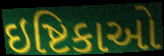
ઇષ્ટિકાઓ